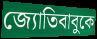
জ্যোতিবাবুকে